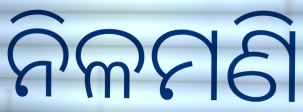
ନିଳମଣି